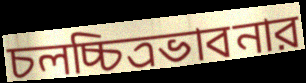
চলচ্চিত্রভাবনার